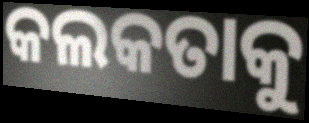
କଲକତାକୁ